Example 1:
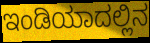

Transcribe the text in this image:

ಇಂಡಿಯಾದಲ್ಲಿನ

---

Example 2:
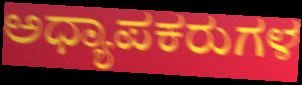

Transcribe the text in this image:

ಅಧ್ಯಾಪಕರುಗಳ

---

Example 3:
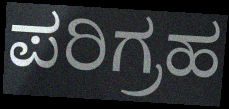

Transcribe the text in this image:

ಪರಿಗ್ರಹ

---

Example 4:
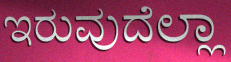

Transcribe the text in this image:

ಇರುವುದೆಲ್ಲಾ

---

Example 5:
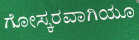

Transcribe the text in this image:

ಗೋಸ್ಕರವಾಗಿಯೂ